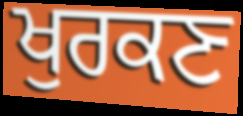
ਖੁਰਕਣ